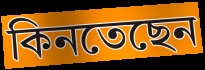
কিনতেছেন